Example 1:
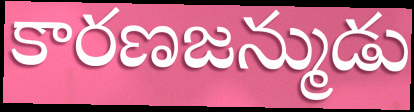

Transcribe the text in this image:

కారణజన్ముడు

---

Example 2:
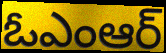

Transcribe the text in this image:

ఓఎంఆర్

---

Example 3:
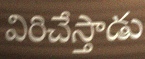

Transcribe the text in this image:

విరిచేస్తాడు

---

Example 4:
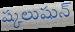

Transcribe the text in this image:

ష్కలుషున్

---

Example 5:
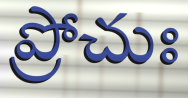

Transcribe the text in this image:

ప్రోచుః